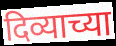
दिव्याच्या